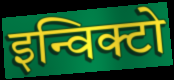
इन्विक्टो